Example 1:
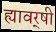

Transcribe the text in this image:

ह्यावर्षी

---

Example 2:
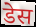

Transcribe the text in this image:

डेस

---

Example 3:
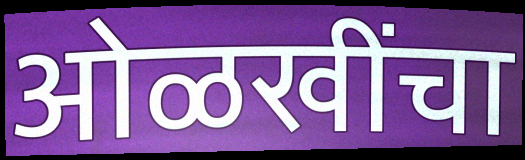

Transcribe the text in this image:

ओळखींचा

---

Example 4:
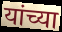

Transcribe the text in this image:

यांच्‍या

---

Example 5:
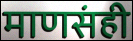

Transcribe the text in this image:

माणसंही